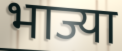
भाज्या